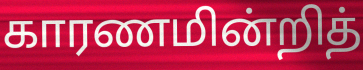
காரணமின்றித்